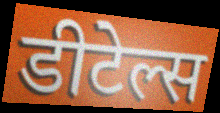
डीटेल्स